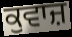
ਕੁਵਾਜ਼